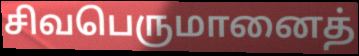
சிவபெருமானைத்